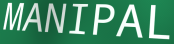
MANIPAL